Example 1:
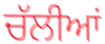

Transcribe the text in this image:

ਚੱਲੀਆਂ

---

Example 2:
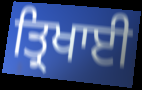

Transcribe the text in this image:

ਤ੍ਰਿਖਾਈ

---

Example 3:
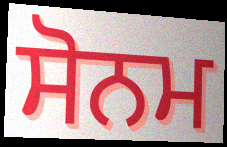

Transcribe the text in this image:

ਸੋਨਮ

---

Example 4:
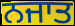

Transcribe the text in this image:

ਨਜਾਤ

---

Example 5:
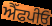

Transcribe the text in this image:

ਐੱਫਪੀਓ